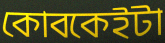
কোবকেইটা